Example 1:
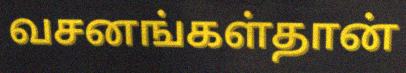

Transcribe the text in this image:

வசனங்கள்தான்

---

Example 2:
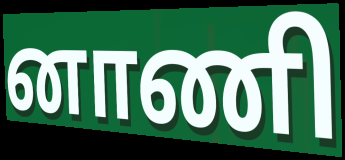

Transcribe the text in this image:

னாணி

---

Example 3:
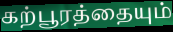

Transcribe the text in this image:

கற்பூரத்தையும்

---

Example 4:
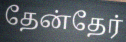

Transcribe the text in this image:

தேன்தேர்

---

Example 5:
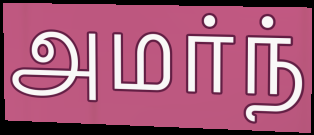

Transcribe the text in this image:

அமர்ந்